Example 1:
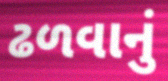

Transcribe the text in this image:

ઢળવાનું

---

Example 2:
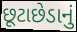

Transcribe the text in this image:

છૂટાછેડાનું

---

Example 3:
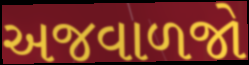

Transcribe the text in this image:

અજવાળજો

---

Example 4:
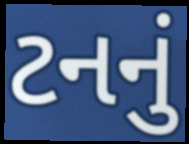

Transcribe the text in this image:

ટનનું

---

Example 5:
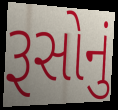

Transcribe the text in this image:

રૂસોનું